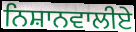
ਨਿਸ਼ਾਨਵਾਲੀਏ